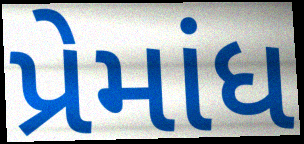
પ્રેમાંધ